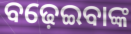
ବଢ଼େଇବାଙ୍କ